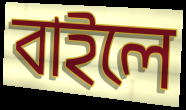
বাইলে